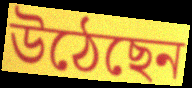
উঠেছেন